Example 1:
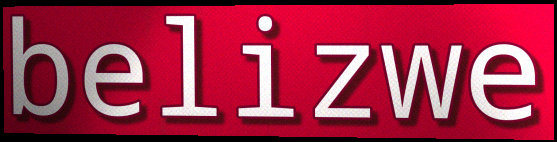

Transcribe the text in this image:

belizwe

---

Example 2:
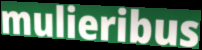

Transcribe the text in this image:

mulieribus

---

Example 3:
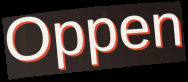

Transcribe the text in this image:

Oppen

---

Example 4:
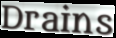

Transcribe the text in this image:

Drains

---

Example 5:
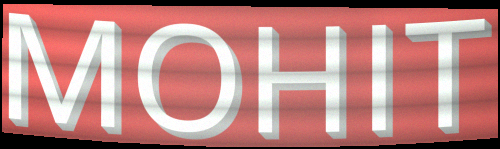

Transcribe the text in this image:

MOHIT